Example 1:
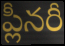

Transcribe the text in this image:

ప్లీనరీ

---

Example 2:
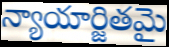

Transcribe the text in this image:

న్యాయార్జితమై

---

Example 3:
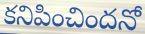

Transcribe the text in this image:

కనిపించిందనో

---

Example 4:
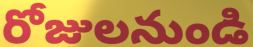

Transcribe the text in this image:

రోజులనుండి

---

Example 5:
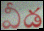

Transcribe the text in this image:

వీడ